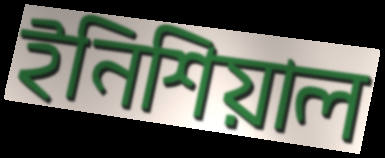
ইনিশিয়াল